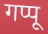
गप्पू